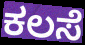
ಕಲಸೆ